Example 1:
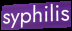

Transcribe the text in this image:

syphilis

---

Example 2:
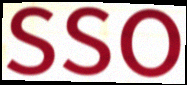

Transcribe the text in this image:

sso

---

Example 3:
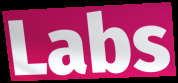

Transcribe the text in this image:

Labs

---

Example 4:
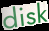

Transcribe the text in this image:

disk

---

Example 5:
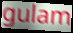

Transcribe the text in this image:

gulam